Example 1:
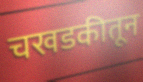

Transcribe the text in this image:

चखडकीतून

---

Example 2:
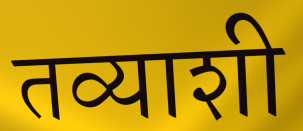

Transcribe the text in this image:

तव्याशी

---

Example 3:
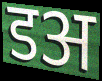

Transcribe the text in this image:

डअ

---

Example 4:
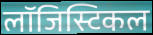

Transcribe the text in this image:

लॉजिस्टिकल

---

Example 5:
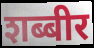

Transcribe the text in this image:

शब्बीर